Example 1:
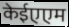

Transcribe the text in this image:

केईएएम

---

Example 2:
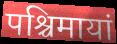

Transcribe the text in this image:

पश्चिमायां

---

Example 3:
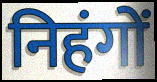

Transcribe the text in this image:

निहंगों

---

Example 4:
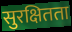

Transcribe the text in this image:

सुरक्षितता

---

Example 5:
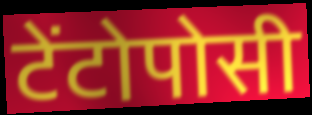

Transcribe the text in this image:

टेंटोपोसी